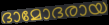
ദാമോദരായ